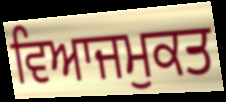
ਵਿਆਜਮੁਕਤ